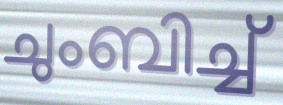
ചുംബിച്ച്